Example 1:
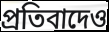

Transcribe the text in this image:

প্রতিবাদেও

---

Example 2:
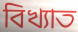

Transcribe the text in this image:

বিখ্যাত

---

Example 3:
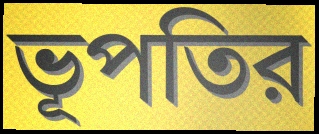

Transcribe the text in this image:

ভূপতির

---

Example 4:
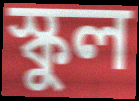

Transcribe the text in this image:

স্কুল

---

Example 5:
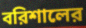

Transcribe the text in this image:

বরিশালের